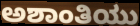
ಅಶಾಂತಿಯು